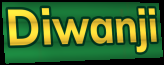
Diwanji